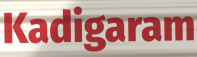
Kadigaram